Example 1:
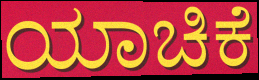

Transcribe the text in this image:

ಯಾಚಿಕೆ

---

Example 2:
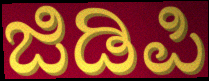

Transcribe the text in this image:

ಜಿಡಿಪಿ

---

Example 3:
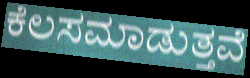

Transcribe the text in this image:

ಕೆಲಸಮಾಡುತ್ತವೆ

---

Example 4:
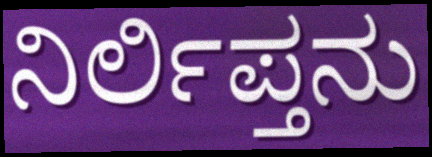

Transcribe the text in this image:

ನಿರ್ಲಿಪ್ತನು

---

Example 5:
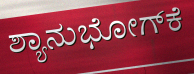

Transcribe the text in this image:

ಶ್ಯಾನುಭೋಗ್‌ಕೆ